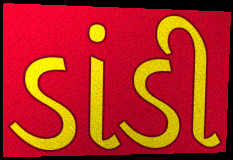
ડાંડી